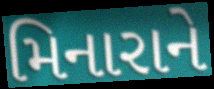
મિનારાને